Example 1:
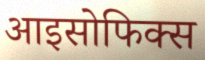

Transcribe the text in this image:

आइसोफिक्स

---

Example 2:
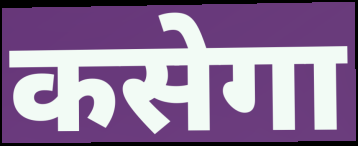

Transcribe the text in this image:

कसेगा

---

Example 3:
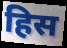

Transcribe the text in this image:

हिस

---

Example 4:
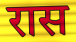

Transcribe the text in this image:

रास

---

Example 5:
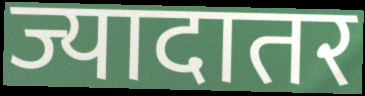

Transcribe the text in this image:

ज्‍यादातर